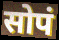
सोपं